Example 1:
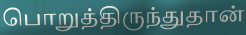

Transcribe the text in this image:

பொறுத்திருந்துதான்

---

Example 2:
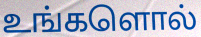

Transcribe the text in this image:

உங்களொல்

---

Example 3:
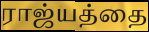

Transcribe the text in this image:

ராஜ்யத்தை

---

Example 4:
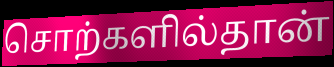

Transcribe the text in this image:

சொற்களில்தான்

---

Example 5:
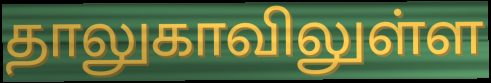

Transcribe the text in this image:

தாலுகாவிலுள்ள